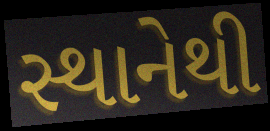
સ્થાનેથી